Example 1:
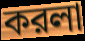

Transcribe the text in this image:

করলা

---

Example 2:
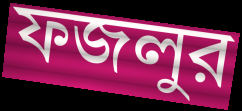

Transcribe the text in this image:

ফজলুর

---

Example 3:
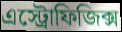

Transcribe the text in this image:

এস্ট্রোফিজিক্স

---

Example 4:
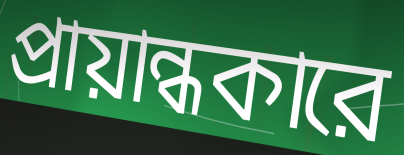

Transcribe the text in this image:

প্রায়ান্ধকারে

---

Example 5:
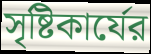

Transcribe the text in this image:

সৃষ্টিকার্যের